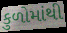
કુળોમાંથી